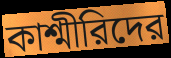
কাশ্মীরিদের